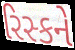
રિસ્કને